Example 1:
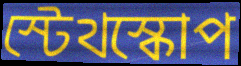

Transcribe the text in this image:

স্টেথস্কোপ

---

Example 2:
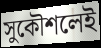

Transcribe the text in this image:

সুকৌশলেই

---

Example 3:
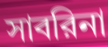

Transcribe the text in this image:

সাবরিনা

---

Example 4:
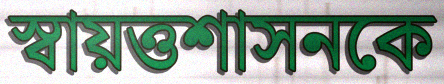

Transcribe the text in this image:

স্বায়ত্তশাসনকে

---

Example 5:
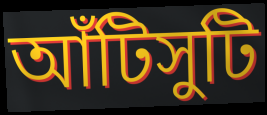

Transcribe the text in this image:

আঁটিসুটি